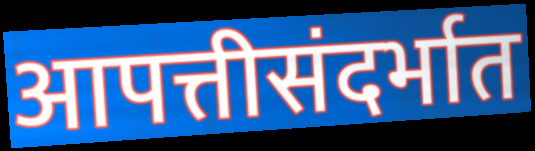
आपत्तीसंदर्भात